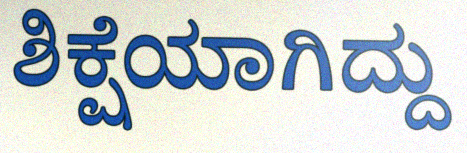
ಶಿಕ್ಷೆಯಾಗಿದ್ದು